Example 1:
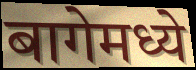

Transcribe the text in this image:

बागेमध्ये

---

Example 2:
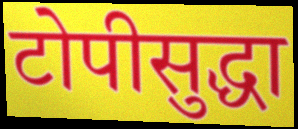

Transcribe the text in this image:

टोपीसुद्धा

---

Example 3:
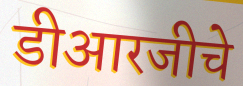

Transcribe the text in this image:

डीआरजीचे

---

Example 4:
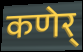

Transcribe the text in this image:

कणेर्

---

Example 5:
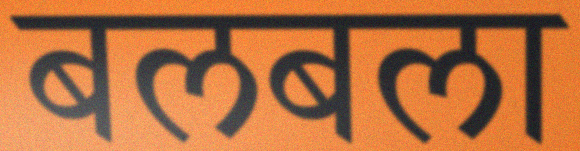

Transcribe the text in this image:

बलबला